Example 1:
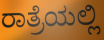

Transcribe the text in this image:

ರಾತ್ರೆಯಲ್ಲಿ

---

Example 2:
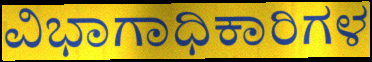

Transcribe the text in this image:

ವಿಭಾಗಾಧಿಕಾರಿಗಳ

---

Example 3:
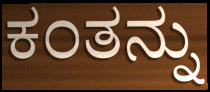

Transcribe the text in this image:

ಕಂತನ್ನು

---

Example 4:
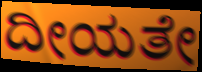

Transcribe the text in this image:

ದೀಯತೇ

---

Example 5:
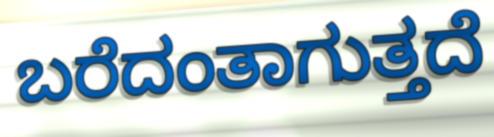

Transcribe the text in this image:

ಬರೆದಂತಾಗುತ್ತದೆ